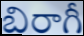
బిరాగీ